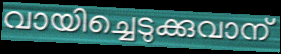
വായിച്ചെടുക്കുവാന്